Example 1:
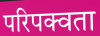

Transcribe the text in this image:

परिपक्‍वता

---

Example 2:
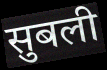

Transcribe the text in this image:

सुबली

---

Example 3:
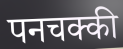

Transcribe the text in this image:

पनचक्की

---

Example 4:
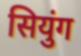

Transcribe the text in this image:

सियुंग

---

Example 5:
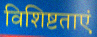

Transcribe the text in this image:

विशिष्टताएं